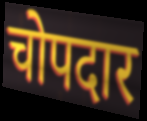
चोपदार